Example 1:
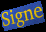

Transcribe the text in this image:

Signe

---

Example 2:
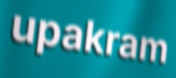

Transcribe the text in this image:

upakram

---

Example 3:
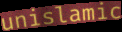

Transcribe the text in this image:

unislamic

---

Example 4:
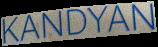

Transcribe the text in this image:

KANDYAN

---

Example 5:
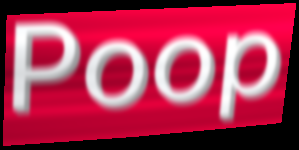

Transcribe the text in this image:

Poop